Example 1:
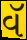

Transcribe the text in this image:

વૅ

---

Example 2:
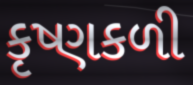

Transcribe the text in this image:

કૃષ્ણકળી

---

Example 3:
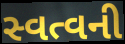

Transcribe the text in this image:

સ્વત્વની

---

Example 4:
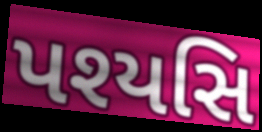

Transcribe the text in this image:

પશ્યસિ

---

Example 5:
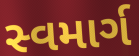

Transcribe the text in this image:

સ્વમાર્ગ